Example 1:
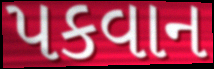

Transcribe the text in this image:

પકવાન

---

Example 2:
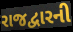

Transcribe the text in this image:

રાજદ્વારની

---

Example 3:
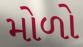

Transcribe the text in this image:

મોળો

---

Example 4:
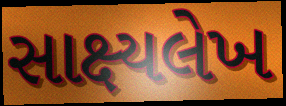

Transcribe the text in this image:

સાક્ષ્યલેખ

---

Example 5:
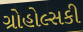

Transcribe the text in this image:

ગ્રોહોલ્સકી